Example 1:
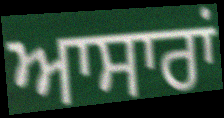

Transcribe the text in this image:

ਆਸਾਰਾਂ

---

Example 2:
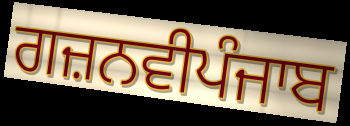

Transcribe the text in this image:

ਗਜ਼ਨਵੀਪੰਜਾਬ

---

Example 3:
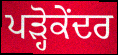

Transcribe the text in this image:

ਪੜ੍ਹੋਕੇਂਦਰ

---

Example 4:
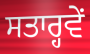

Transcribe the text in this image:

ਸਤਾਰ੍ਹਵੇਂ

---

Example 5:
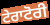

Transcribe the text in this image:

ਟੇਰਾਟੋਰੀ